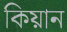
কিয়ান